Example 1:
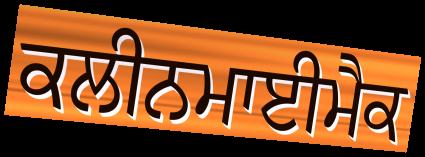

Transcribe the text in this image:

ਕਲੀਨਮਾਈਮੈਕ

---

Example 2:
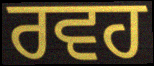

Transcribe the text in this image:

ਰਵਹ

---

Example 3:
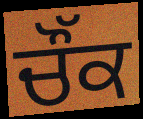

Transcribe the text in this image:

ਚੌੱਕ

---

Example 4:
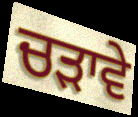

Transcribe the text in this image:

ਚੜਾਵੇ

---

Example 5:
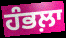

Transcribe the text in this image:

ਹੰਭਲ਼ਾ